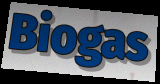
Biogas